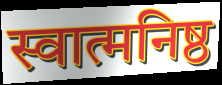
स्वात्मनिष्ठ